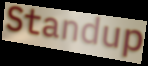
Standup